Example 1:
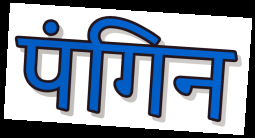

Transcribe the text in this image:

पंगिन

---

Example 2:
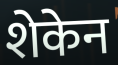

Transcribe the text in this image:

शेकेन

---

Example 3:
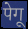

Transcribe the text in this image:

पेगू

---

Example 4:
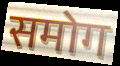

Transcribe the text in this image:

समोग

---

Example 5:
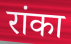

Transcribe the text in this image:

रांका